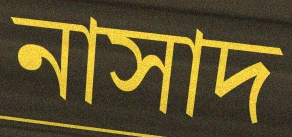
নাসাদ